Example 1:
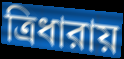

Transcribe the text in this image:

ত্রিধারায়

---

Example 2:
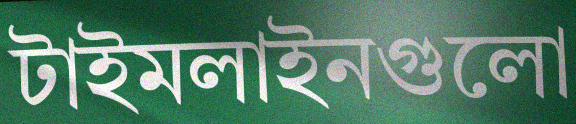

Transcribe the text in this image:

টাইমলাইনগুলো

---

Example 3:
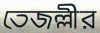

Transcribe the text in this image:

তেজল্লীর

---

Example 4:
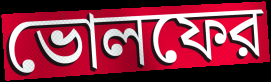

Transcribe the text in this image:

ভোলফের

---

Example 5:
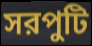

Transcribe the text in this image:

সরপুটি